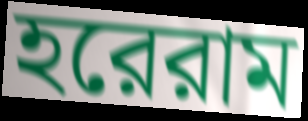
হরেরাম